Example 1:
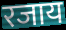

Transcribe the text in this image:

रजाय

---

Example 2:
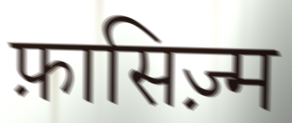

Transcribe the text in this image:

फ़ासिज़्म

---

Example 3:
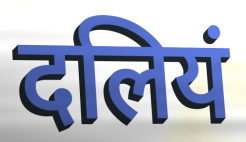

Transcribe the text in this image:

दलियं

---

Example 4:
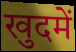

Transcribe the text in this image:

खुदमें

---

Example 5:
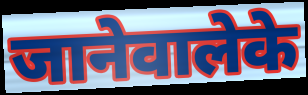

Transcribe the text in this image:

जानेवालेके